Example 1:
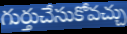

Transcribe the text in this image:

గుర్తుచేసుకోవచ్చు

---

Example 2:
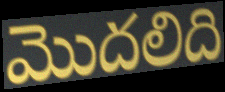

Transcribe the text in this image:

మొదలిది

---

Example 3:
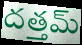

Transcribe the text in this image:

దత్తమ్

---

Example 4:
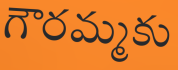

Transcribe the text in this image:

గౌరమ్మకు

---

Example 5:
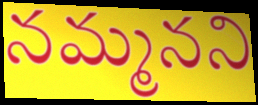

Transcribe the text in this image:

నమ్మనని